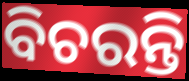
ବିଚରନ୍ତି